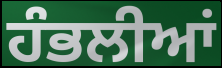
ਹੰਭਲੀਆਂ